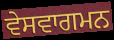
ਵੇਸਵਾਗਮਨ